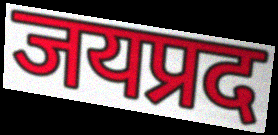
जयप्रद